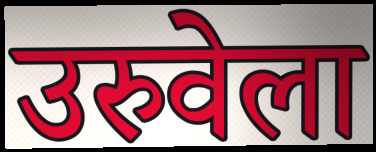
उरुवेला